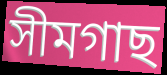
সীমগাছ